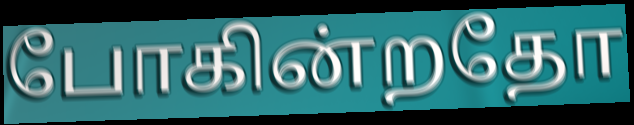
போகின்றதோ